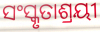
ସଂସ୍କୃତାଶ୍ରୟୀ